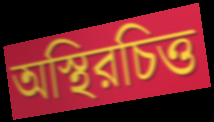
অস্থিরচিত্ত